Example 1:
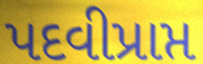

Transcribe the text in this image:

પદવીપ્રાપ્ત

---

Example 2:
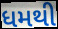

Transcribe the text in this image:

ધમથી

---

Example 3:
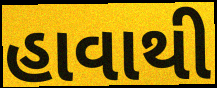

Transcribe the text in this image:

હાવાથી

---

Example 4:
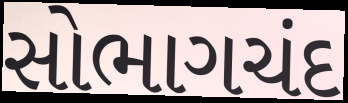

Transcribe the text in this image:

સોભાગચંદ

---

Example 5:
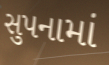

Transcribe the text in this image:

સુપનામાં